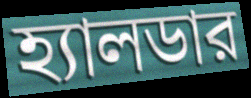
হ্যালডার